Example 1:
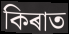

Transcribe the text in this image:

কিৰাত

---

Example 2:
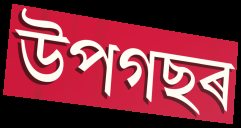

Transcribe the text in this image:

উপগছৰ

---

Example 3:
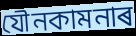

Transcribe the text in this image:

যৌনকামনাৰ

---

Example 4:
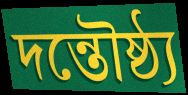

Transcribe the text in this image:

দন্তৌষ্ঠ্য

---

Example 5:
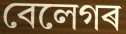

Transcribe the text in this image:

বেলেগৰ